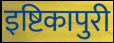
इष्टिकापुरी